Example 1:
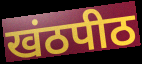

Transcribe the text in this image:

खंठपीठ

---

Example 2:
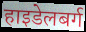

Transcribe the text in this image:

हाइडेलबर्ग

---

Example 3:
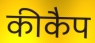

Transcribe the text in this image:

कीकैप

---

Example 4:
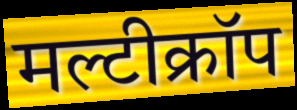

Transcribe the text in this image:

मल्टीक्रॉप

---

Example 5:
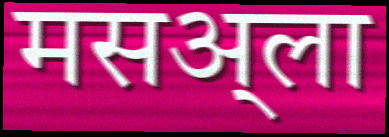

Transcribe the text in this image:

मसअ्ला